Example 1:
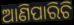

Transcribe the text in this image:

ଆଣିପାରିଚି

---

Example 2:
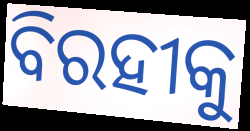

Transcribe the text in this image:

ବିରହୀକୁ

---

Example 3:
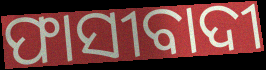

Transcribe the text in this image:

ଫାସୀବାଦୀ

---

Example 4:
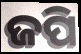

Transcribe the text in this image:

ଜପି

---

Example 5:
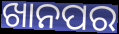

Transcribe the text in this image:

ଖାନପର